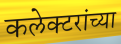
कलेक्टरांच्या